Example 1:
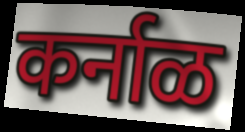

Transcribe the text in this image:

कर्नाळ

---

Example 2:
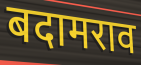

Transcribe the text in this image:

बदामराव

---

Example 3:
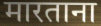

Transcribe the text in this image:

मारताना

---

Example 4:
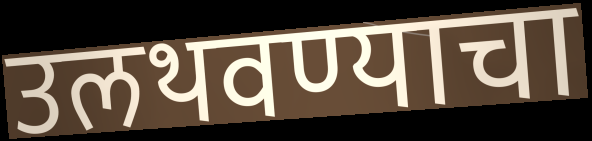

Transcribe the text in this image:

उलथवण्याचा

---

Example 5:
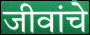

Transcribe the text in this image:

जीवांचे